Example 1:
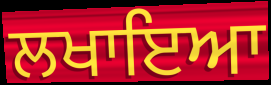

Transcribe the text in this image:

ਲਖਾਇਆ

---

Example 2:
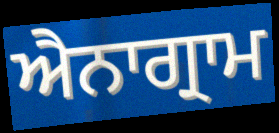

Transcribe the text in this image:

ਐਨਾਗ੍ਰਾਮ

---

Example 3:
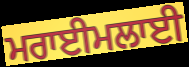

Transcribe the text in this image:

ਮਰਾਈਮਲਾਈ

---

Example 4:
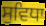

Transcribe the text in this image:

ਸੁਵਿਧਾ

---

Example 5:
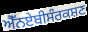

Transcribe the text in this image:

ਐੱਨਏਬੀਸੰਰਕਸ਼ਣ